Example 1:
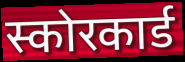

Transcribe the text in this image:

स्कोरकार्ड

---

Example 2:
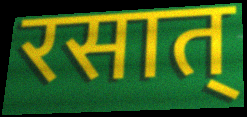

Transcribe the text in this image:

रसात्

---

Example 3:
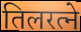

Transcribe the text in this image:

तिलरत्ने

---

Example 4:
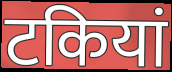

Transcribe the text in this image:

टकियां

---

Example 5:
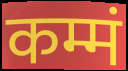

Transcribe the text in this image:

कम्मं